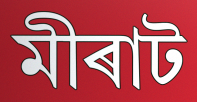
মীৰাট